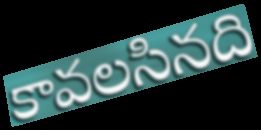
కావలసినది